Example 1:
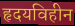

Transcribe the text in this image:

हृदयविहीन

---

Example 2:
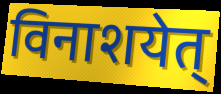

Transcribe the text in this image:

विनाशयेत्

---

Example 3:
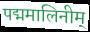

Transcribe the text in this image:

पद्ममालिनीम्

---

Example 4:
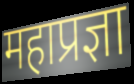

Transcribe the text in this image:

महाप्रज्ञा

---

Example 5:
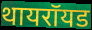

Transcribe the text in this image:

थायरॉयड